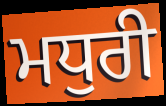
ਮਧੁਰੀ